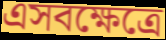
এসবক্ষেত্রে